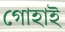
গোহাই